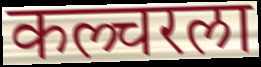
कल्चरला